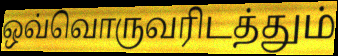
ஒவ்வொருவரிடத்தும்